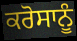
ਕਰੋਸਾਨੂੰ